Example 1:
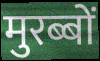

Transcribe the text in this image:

मुरब्बों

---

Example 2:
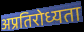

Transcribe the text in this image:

अप्रतिरोध्यता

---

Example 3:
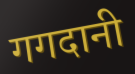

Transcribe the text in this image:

गगदानी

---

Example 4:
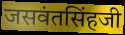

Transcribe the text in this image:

जसवंतसिंहजी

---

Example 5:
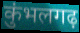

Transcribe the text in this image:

कुंभलगढ़